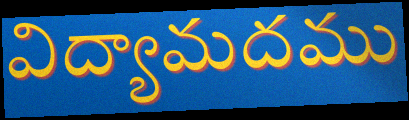
విద్యామదము